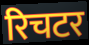
रिचटर